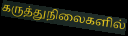
கருத்துநிலைகளில்